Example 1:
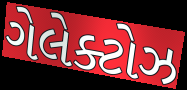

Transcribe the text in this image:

ગેલેક્ટોઝ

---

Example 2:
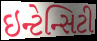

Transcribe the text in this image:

ઇન્ટેન્સિટી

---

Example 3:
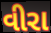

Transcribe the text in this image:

વીરા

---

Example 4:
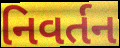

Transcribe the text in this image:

નિવર્તન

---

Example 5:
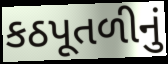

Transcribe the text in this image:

કઠપૂતળીનું